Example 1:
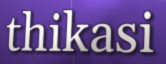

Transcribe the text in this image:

thikasi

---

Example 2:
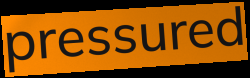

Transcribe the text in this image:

pressured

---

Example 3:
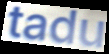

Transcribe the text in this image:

tadu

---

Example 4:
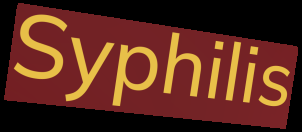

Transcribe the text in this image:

Syphilis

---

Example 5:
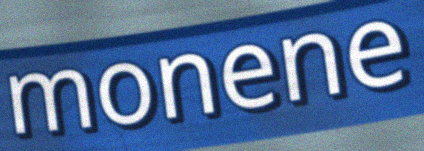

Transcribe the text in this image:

monene